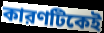
কারণটিকেই